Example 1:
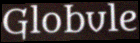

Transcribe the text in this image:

Globule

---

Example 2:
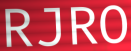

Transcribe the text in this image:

RJRO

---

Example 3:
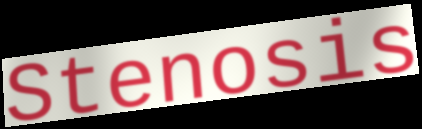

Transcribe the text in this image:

Stenosis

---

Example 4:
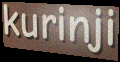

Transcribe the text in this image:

kurinji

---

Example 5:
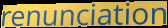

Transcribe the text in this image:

renunciation